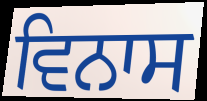
ਵਿਨਾਸ